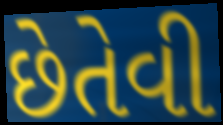
છેતેવી